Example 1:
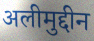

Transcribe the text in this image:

अलीमुद्दीन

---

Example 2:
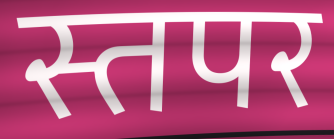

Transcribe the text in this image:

स्तपर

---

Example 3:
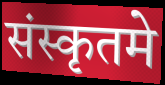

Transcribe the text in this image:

संस्कृतमे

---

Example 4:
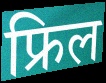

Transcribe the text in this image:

फ्रिल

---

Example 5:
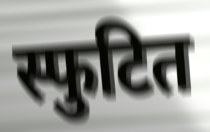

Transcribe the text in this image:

स्फुटित